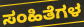
ಸಂಹಿತೆಗಳ